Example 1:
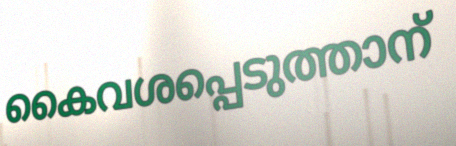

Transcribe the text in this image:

കൈവശപ്പെടുത്താന്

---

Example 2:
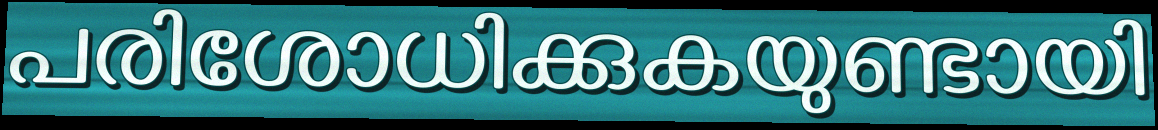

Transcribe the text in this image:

പരിശോധിക്കുകയുണ്ടായി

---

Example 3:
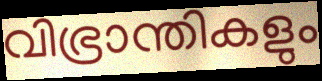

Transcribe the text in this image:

വിഭ്രാന്തികളും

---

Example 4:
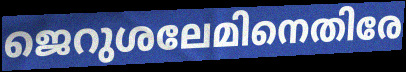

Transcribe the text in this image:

ജെറുശലേമിനെതിരേ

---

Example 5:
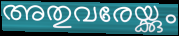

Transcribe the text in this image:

അതുവരേയ്ക്കും